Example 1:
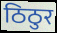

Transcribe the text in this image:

ठिठुर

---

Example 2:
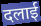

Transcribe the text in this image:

दलाई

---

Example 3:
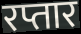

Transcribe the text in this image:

रप्तार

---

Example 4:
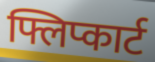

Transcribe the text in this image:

फ्लिप्कार्ट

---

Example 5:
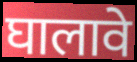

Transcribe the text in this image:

घालावे